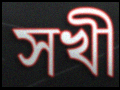
সখী